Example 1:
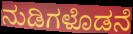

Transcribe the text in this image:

ನುಡಿಗಳೊಡನೆ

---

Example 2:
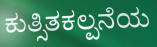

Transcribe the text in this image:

ಕುತ್ಸಿತಕಲ್ಪನೆಯ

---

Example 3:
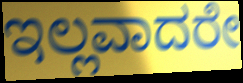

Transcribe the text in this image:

ಇಲ್ಲವಾದರೇ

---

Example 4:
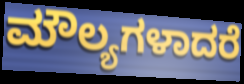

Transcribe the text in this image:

ಮೌಲ್ಯಗಳಾದರೆ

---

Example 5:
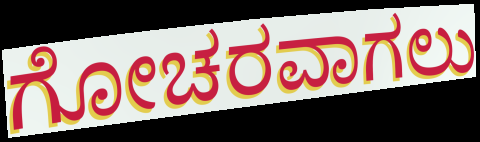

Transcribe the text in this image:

ಗೋಚರವಾಗಲು